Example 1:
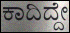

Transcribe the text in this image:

ಕಾದಿದ್ದೇ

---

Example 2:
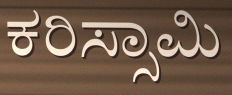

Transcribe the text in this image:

ಕರಿಸ್ಸಾಮಿ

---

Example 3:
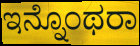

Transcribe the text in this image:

ಇನ್ನೊಂಥರಾ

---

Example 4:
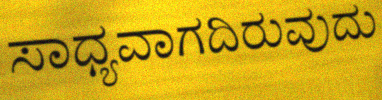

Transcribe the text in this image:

ಸಾಧ್ಯವಾಗದಿರುವುದು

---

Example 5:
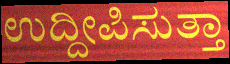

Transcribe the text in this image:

ಉದ್ದೀಪಿಸುತ್ತಾ